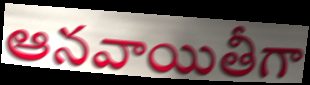
ఆనవాయితీగా